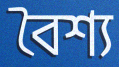
বৈশ্য